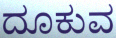
ದೂಕುವ